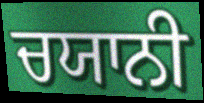
ਚਯਾਨੀ